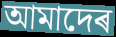
আমাদেৰ